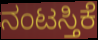
ನಂಟಸ್ತಿಕೆ